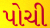
પોચી